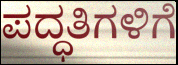
ಪದ್ಧತಿಗಳಿಗೆ